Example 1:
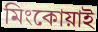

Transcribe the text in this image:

মিংকোয়াই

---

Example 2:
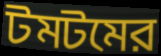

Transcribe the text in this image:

টমটমের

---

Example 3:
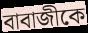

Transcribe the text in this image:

বাবাজীকে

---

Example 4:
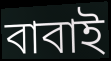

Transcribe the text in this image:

বাবাই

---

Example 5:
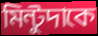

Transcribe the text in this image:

মিন্টুদাকে